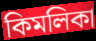
কিমলিকা